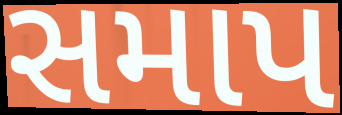
સમાપ